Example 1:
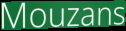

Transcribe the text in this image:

Mouzans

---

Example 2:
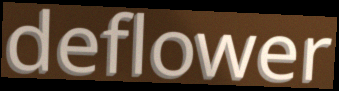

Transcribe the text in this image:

deflower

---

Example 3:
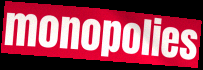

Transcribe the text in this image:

monopolies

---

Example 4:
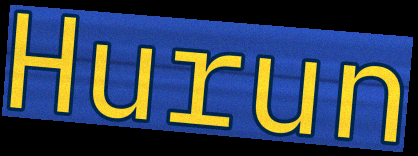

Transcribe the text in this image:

Hurun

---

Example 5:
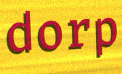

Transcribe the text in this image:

dorp